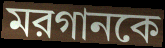
মরগানকে